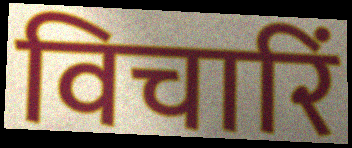
विचारिं